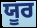
ਯੂਰ